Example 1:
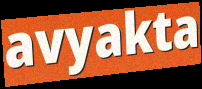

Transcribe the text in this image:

avyakta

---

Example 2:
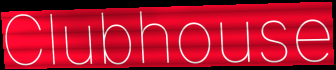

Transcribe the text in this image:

Clubhouse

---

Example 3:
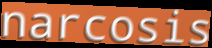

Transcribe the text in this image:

narcosis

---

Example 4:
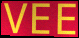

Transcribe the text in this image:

VEE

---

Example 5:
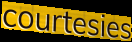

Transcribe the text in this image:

courtesies